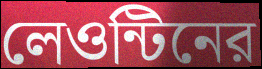
লেওন্টিনের